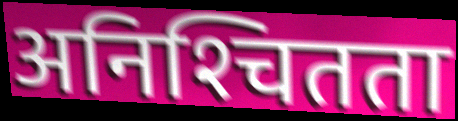
अनिश्चितता